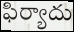
ఫిర్యాదు